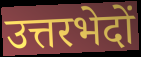
उत्तरभेदों